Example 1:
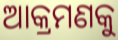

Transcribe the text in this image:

ଆକ୍ରମଣକୁ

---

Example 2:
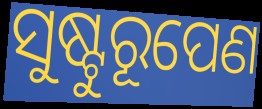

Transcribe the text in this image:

ସୁଷ୍ଟୁରୂପେଣ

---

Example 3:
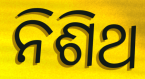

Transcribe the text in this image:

ନିଶିଥ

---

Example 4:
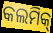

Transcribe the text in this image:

କଲମିକ୍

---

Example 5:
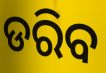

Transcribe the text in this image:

ଡରିବ